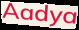
Aadya